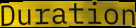
Duration